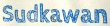
Sudkawan